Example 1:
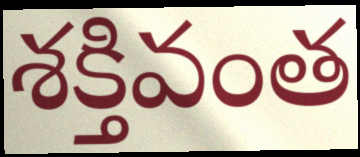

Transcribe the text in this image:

శక్తివంత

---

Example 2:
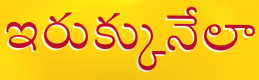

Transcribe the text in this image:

ఇరుక్కునేలా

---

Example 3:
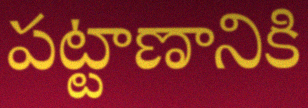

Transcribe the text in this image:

పట్టాణానికి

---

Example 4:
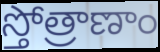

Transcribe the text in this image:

స్తోత్రాణాం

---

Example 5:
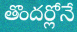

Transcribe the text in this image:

తొందర్లోనే